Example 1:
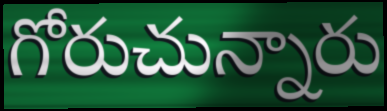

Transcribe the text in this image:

గోరుచున్నారు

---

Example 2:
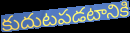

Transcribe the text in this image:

కుదుటపడటానికి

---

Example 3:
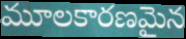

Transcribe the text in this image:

మూలకారణమైన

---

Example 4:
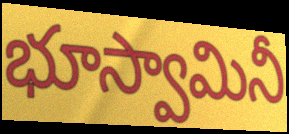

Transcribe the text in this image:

భూస్వామినీ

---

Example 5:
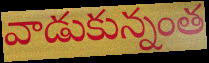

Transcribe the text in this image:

వాడుకున్నంత